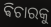
ଵିଚାରକୁ